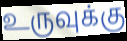
உருவுக்கு